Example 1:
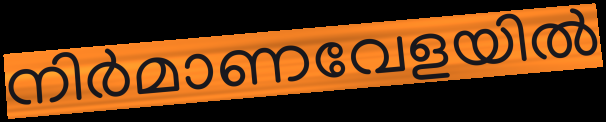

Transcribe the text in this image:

നിർമാണവേളയിൽ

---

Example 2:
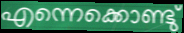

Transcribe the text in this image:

എന്നെക്കൊണ്ടു്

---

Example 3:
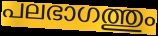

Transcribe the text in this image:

പലഭാഗത്തും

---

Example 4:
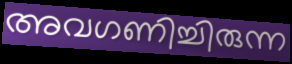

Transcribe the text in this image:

അവഗണിച്ചിരുന്ന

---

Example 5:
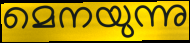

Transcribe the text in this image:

മെനയുന്നു